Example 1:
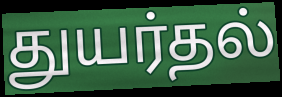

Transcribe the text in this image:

துயர்தல்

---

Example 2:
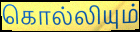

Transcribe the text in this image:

கொல்லியும்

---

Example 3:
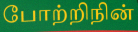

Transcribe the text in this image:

போற்றிநின்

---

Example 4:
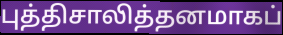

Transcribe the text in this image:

புத்திசாலித்தனமாகப்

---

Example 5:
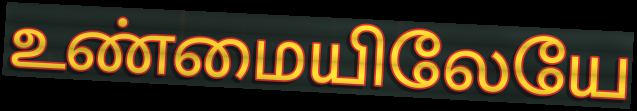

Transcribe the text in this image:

உண்மையிலேயே